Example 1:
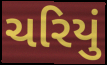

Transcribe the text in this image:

ચરિયું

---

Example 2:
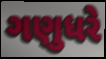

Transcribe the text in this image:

ગણુધરે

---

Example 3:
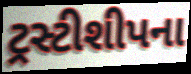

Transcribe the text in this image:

ટ્રસ્ટીશીપના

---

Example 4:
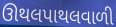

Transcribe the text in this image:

ઊથલપાથલવાળી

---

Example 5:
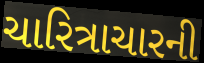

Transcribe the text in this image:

ચારિત્રાચારની